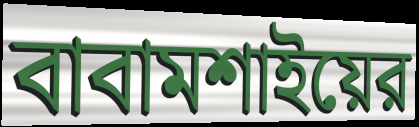
বাবামশাইয়ের